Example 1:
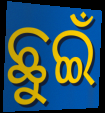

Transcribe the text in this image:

ଛୁଇଁ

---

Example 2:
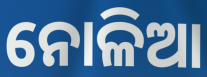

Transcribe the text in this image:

ନୋଳିଆ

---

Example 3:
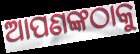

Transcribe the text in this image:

ଆପଣଙ୍କଠାକୁ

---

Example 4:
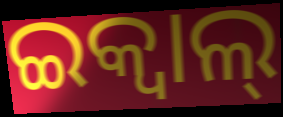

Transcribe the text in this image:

ଇକ୍ୱାଲ୍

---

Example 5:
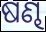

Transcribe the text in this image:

ଷଣ୍ଢ